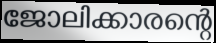
ജോലിക്കാരന്റെ